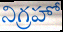
నిగ్రహో